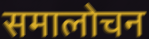
समालोचन